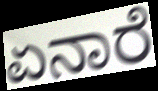
ಏನಾರೆ